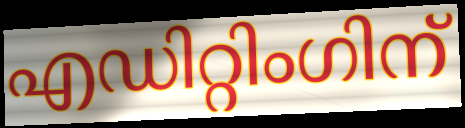
എഡിറ്റിംഗിന്